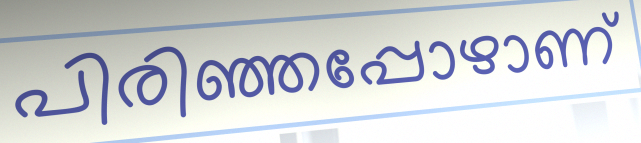
പിരിഞ്ഞപ്പോഴാണ്